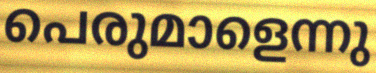
പെരുമാളെന്നു